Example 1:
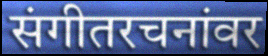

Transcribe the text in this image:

संगीतरचनांवर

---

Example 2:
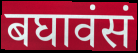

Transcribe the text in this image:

बघावंसं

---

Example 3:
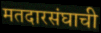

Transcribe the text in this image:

मतदारसंघाची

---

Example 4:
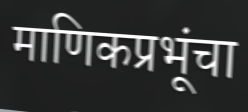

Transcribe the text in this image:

माणिकप्रभूंचा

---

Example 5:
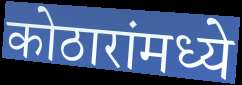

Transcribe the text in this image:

कोठारांमध्ये